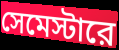
সেমেস্টারে